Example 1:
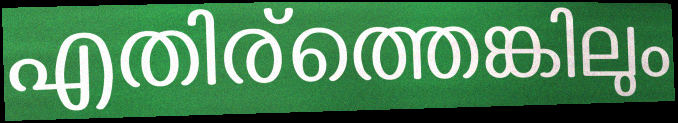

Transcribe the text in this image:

എതിര്ത്തെങ്കിലും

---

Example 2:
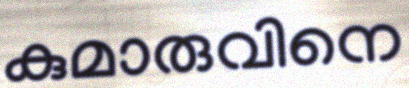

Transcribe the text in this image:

കുമാരുവിനെ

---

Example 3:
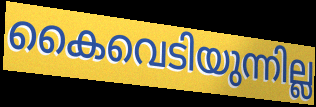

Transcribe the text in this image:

കൈവെടിയുന്നില്ല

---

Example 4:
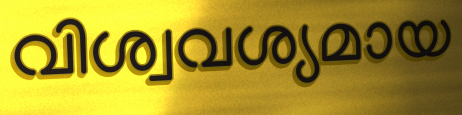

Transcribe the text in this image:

വിശ്വവശ്യമായ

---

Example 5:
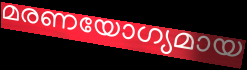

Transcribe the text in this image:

മരണയോഗ്യമായ